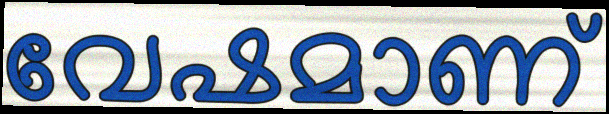
വേഷമാണ്